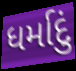
ધર્માદું